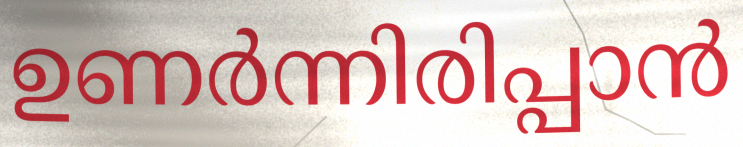
ഉണർന്നിരിപ്പാൻ